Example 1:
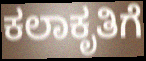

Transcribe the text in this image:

ಕಲಾಕೃತಿಗೆ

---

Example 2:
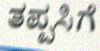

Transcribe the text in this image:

ತಪ್ಪಸಿಗೆ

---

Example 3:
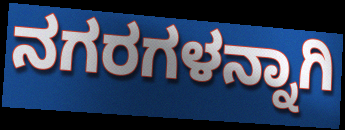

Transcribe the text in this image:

ನಗರಗಳನ್ನಾಗಿ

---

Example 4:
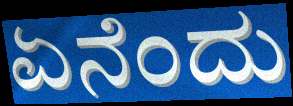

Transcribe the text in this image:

ಏನೆಂದು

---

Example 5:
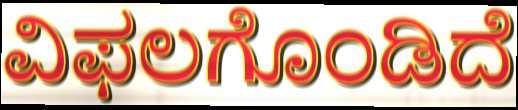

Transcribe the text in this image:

ವಿಫಲಗೊಂಡಿದೆ